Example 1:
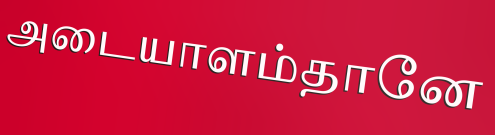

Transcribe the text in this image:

அடையாளம்தானே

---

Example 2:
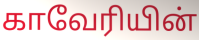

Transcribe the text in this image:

காவேரியின்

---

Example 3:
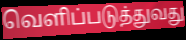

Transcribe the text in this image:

வெளிப்படுத்துவது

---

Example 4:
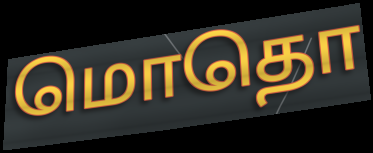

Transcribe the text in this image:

மொதொ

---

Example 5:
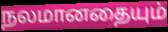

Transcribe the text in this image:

நலமானதையும்